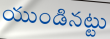
యుండినట్టు